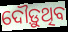
ଦୌଡ଼ୁଥିବ